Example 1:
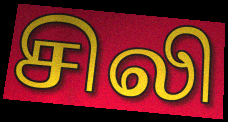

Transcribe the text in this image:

சிலி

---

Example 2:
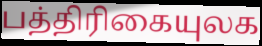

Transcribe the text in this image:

பத்திரிகையுலக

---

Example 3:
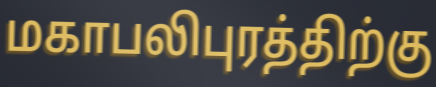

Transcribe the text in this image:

மகாபலிபுரத்திற்கு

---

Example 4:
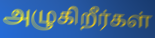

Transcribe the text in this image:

அழுகிறீர்கள்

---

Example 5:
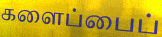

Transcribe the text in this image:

களைப்பைப்